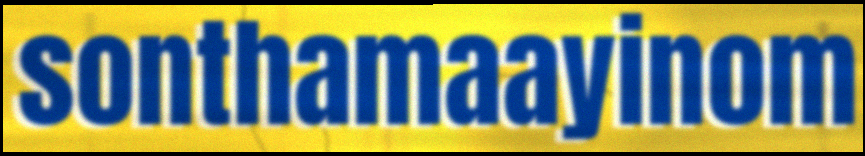
sonthamaayinom